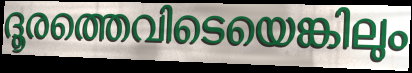
ദൂരത്തെവിടെയെങ്കിലും